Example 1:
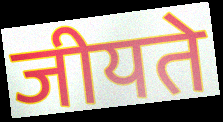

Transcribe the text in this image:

जीयते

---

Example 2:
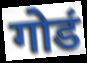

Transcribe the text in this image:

गोडं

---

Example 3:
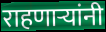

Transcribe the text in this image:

राहणार्‍यांनी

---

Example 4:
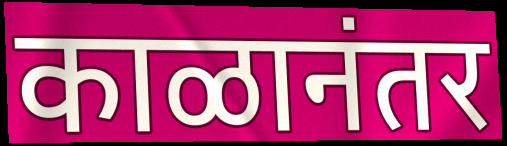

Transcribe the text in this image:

काळानंतर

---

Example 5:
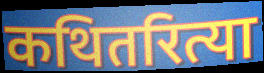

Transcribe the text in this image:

कथितरित्या